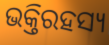
ଭକ୍ତିରହସ୍ୟ